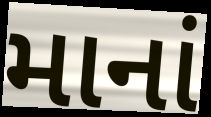
માનાં